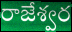
రాజేశ్వర